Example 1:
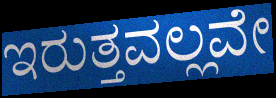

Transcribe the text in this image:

ಇರುತ್ತವಲ್ಲವೇ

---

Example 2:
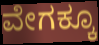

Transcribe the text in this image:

ವೇಗಕ್ಕೂ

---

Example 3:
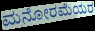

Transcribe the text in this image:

ಮನೋರಮೆಯರ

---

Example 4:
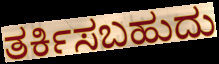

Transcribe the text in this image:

ತರ್ಕಿಸಬಹುದು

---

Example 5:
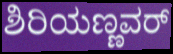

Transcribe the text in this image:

ಶಿರಿಯಣ್ಣವರ್